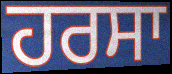
ਹਰਸਾ